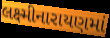
લક્ષ્મીનારાયણમાં